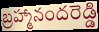
బ్రహ్మానందరెడ్డి